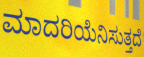
ಮಾದರಿಯೆನಿಸುತ್ತದೆ